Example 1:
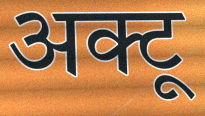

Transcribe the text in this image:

अक्टू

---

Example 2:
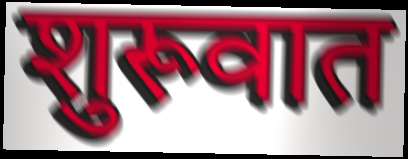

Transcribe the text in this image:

शुरूवात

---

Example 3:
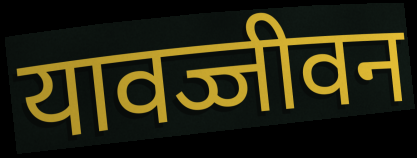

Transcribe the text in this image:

यावज्जीवन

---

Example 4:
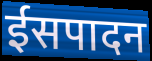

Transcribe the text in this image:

ईसपादन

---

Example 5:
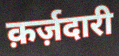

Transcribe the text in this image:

क़र्ज़दारी